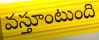
వస్తూంటుంది